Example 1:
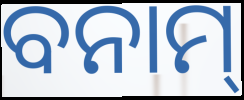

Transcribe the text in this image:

ବନାମ୍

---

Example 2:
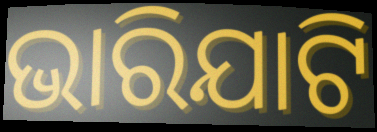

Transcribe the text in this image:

ଭାରିଯାଟି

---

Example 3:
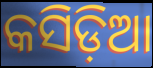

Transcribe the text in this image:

କସିଡ଼ିଆ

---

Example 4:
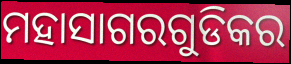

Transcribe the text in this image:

ମହାସାଗରଗୁଡିକର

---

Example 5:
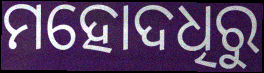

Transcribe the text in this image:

ମହୋଦଧିରୁ